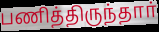
பணித்திருந்தார்